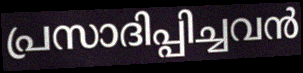
പ്രസാദിപ്പിച്ചവൻ